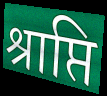
श्राप्ति